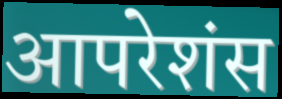
आपरेशंस